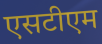
एसटीएम